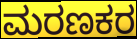
ಮರಣಕರ